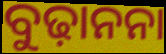
ବୁଢ଼ାନନା